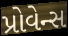
પ્રોવેન્સ